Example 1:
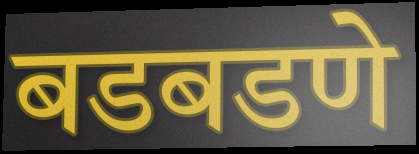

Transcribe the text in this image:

बडबडणे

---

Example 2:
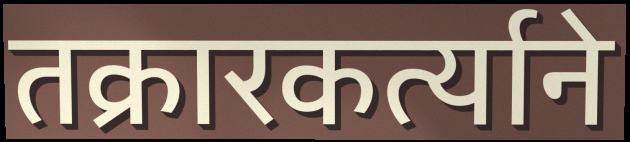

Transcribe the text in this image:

तक्रारकर्त्याने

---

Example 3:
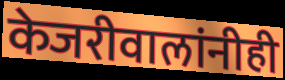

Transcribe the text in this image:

केजरीवालांनीही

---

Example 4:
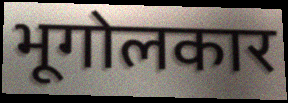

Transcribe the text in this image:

भूगोलकार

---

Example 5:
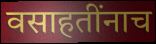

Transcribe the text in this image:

वसाहतींनाच